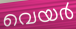
വെയർ